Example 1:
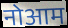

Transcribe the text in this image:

नोआम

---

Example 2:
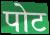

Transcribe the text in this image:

पोट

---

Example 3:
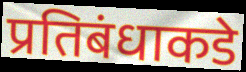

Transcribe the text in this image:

प्रतिबंधाकडे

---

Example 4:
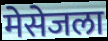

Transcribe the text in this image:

मेसेजला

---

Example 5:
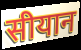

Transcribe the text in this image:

सीयान